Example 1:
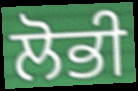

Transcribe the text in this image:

ਲੋਭੀ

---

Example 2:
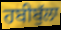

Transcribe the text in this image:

ਹਬੀਬੁੱਲਾ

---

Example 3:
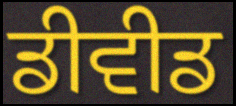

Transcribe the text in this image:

ਡੀਵੀਡ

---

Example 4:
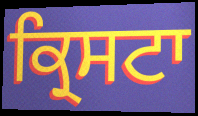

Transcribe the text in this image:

ਕ੍ਰਿਸਟਾ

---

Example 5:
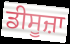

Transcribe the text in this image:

ਡੀਸੂਜ਼ਾ